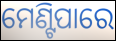
ମେଣ୍ଟିପାରେ